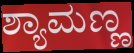
ಶ್ಯಾಮಣ್ಣ